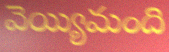
వెయ్యిమంది